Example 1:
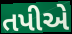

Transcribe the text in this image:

તપીએ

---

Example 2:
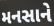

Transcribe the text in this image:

મનસાને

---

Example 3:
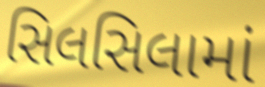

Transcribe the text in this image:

સિલસિલામાં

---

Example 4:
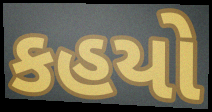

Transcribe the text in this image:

કહયો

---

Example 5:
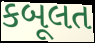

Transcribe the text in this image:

કબૂલત